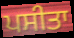
ਪਸੀਤਾ